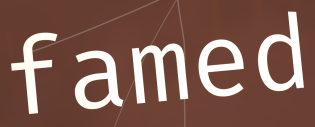
famed